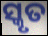
ସ୍କୃତ